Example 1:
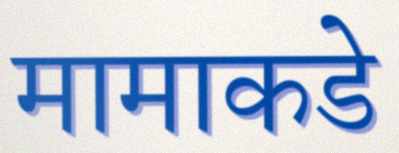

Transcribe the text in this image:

मामाकडे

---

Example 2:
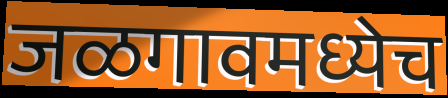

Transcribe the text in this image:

जळगावमध्येच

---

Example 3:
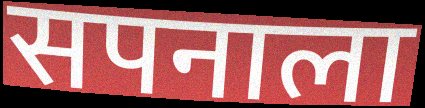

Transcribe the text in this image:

सपनाला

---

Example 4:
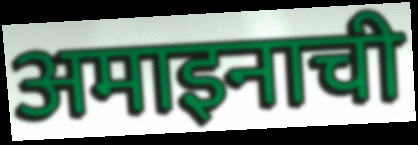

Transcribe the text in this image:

अमाइनाची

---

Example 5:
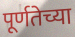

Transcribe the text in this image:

पूर्णतेच्या